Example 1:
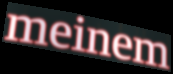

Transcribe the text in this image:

meinem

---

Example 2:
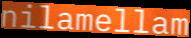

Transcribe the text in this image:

nilamellam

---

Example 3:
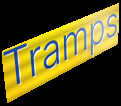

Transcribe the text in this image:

Tramps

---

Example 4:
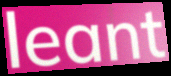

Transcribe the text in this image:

leant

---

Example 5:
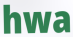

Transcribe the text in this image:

hwa